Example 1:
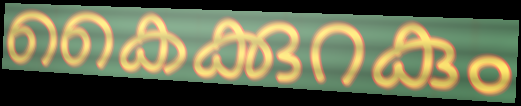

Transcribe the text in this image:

കൈക്കുറകും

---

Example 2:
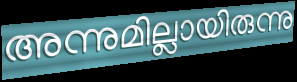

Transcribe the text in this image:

അന്നുമില്ലായിരുന്നു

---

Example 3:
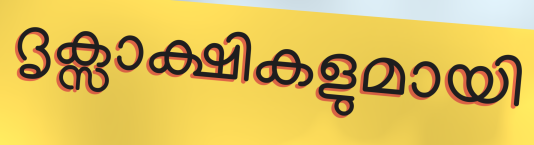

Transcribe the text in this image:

ദൃക്സാക്ഷികളുമായി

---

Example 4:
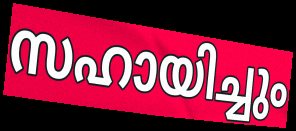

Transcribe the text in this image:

സഹായിച്ചും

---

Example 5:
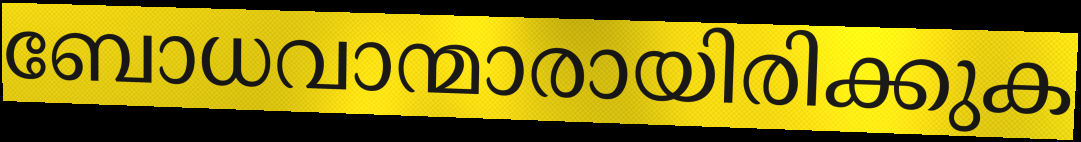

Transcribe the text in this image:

ബോധവാന്മാരായിരിക്കുക